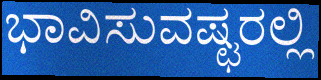
ಭಾವಿಸುವಷ್ಟರಲ್ಲಿ